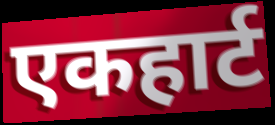
एकहार्ट